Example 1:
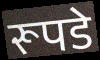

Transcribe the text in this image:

रूपडे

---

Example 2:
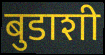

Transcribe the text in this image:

बुडाशी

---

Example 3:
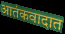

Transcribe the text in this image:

आतंकवादात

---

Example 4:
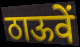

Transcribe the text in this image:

ठाऊवें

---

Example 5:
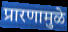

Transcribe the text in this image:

प्रारणामुळे